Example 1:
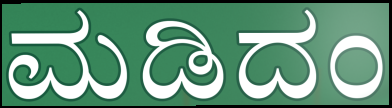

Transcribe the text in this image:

ಮಡಿದಂ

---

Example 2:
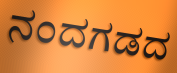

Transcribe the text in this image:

ನಂದಗಡದ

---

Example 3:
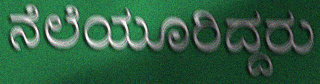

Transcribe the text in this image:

ನೆಲೆಯೂರಿದ್ದರು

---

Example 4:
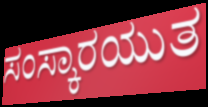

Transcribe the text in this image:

ಸಂಸ್ಕಾರಯುತ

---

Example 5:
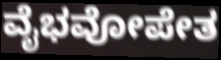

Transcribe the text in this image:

ವೈಭವೋಪೇತ